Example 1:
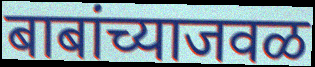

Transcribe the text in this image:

बाबांच्याजवळ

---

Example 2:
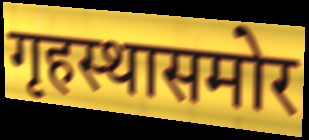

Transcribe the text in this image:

गृहस्थासमोर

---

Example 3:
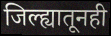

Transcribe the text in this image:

जिल्ह्यातूनही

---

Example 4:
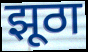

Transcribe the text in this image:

झूठा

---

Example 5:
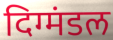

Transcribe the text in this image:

दिग्मंडल